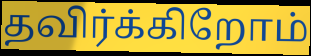
தவிர்க்கிறோம்